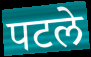
पटले